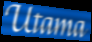
Utama